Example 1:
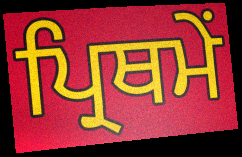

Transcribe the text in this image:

ਪ੍ਰਿਥਮੇਂ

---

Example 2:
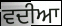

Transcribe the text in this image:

ਵਦੀਆ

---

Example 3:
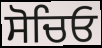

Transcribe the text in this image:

ਸੋਚਿਓ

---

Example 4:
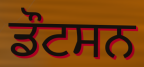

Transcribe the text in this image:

ਡੌਟਸਨ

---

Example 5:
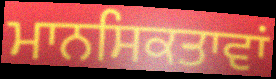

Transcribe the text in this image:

ਮਾਨਸਿਕਤਾਵਾਂ